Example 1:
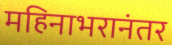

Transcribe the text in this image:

महिनाभरानंतर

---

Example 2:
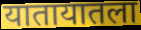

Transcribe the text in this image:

यातायातला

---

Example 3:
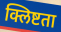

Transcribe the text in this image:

क्लिष्टता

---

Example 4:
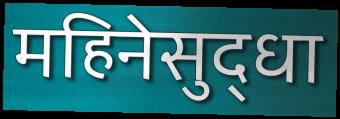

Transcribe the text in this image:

महिनेसुद्धा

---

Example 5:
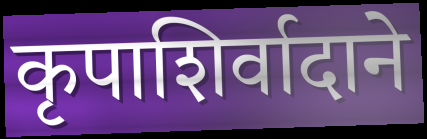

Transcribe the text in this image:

कृपाशिर्वादाने